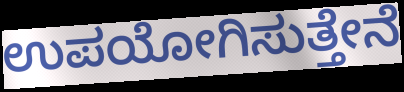
ಉಪಯೋಗಿಸುತ್ತೇನೆ